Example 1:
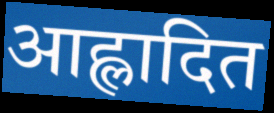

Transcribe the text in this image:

आह्लादित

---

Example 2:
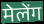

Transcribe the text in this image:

मेलेंग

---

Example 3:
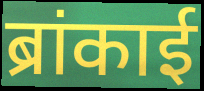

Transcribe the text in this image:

ब्रांकाई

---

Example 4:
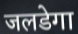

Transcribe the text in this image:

जलडेगा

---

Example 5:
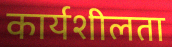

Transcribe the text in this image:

कार्यशीलता